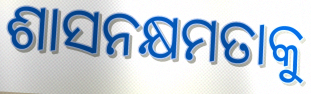
ଶାସନକ୍ଷମତାକୁ